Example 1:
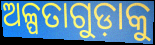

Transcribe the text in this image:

ଅଳ୍ପତାଗୁଡ଼ାକୁ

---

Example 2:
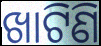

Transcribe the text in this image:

ଖାଟିଣି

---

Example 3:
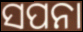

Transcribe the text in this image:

ସପନା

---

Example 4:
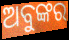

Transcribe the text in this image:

ଅବୁଙ୍କର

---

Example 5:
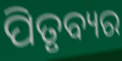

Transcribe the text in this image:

ପିତୃବ୍ୟର